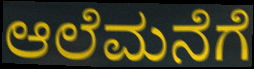
ಆಲೆಮನೆಗೆ